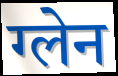
ग्लेन